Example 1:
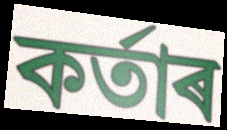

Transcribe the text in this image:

কৰ্তাৰ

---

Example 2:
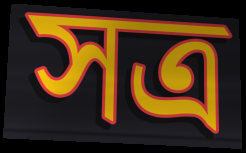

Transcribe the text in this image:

সত্ৰ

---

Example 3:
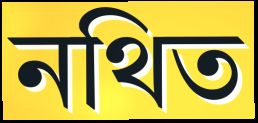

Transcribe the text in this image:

নথিত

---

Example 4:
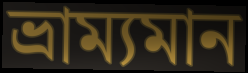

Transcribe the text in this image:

ভ্ৰাম্যমান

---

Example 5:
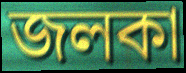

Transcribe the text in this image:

জলকা